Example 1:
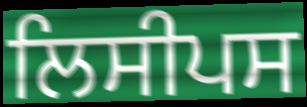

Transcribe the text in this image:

ਲਿਸੀਪਸ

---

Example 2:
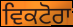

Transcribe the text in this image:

ਵਿਕਟੋਰਾ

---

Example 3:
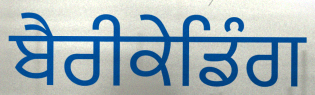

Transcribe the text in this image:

ਬੈਰੀਕੇਡਿੰਗ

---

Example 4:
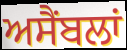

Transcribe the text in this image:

ਅਸੈਂਬਲਾਂ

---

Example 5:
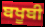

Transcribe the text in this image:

ਬਖੂਬੀ